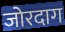
जोरदाग